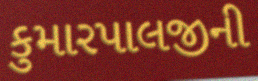
કુમારપાલજીની